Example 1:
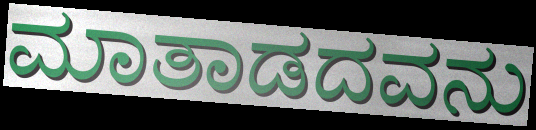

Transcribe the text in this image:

ಮಾತಾಡದವನು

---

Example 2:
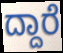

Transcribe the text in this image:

ದ್ದಾರೆ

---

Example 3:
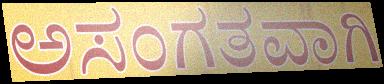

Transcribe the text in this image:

ಅಸಂಗತವಾಗಿ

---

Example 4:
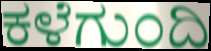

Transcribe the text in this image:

ಕಳೆಗುಂದಿ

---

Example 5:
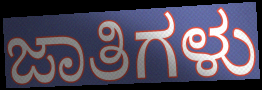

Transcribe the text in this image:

ಜಾತಿಗಳು